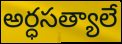
అర్ధసత్యాలే